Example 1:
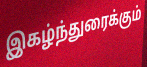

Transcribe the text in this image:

இகழ்ந்துரைக்கும்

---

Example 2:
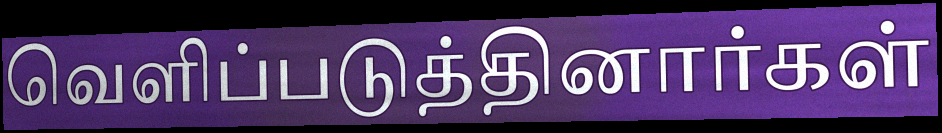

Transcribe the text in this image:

வெளிப்படுத்தினார்கள்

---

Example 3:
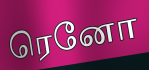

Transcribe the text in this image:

ரெனோ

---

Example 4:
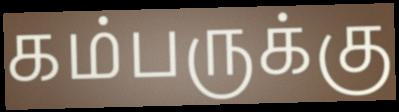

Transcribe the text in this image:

கம்பருக்கு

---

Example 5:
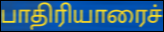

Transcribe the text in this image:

பாதிரியாரைச்